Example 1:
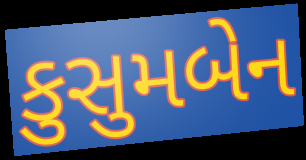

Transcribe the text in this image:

કુસુમબેન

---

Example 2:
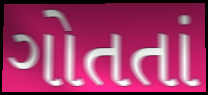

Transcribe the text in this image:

ગોતતાં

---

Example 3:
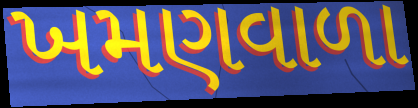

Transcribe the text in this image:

ખમણવાળા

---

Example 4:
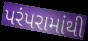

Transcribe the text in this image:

પરંપરામાંથી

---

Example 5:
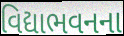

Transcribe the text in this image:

વિદ્યાભવનના